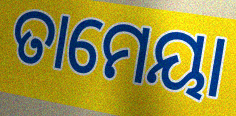
ତାମେୟା